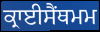
ਕ੍ਰਾਈਸੈਂਥਮਮ